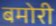
बमोरी